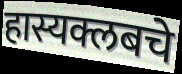
हास्यक्लबचे